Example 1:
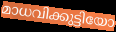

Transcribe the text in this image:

മാധവിക്കുട്ടിയോ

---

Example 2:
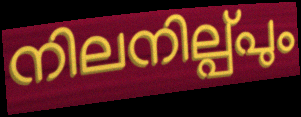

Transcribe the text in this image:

നിലനില്പ്പും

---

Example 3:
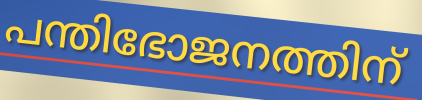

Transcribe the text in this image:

പന്തിഭോജനത്തിന്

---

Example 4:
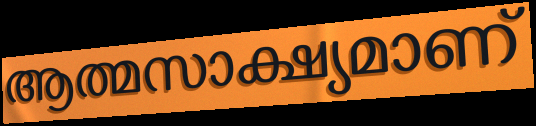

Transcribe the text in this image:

ആത്മസാക്ഷ്യമാണ്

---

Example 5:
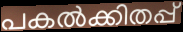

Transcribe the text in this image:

പകൽക്കിതപ്പ്